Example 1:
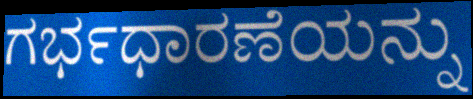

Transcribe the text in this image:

ಗರ್ಭಧಾರಣೆಯನ್ನು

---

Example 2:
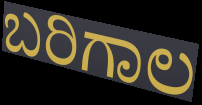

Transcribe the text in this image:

ಬರಿಗಾಲ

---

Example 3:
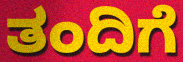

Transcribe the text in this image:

ತಂದಿಗೆ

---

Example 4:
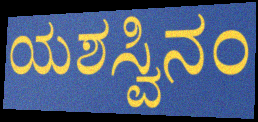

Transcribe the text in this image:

ಯಶಸ್ವಿನಂ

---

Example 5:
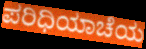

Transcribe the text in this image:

ಪರಿಧಿಯಾಚೆಯ